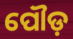
ପୌଡ଼